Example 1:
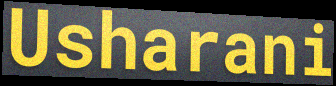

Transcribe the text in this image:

Usharani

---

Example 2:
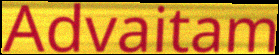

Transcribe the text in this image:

Advaitam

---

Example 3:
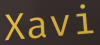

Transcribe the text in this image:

Xavi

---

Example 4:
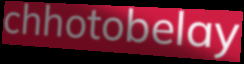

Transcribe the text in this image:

chhotobelay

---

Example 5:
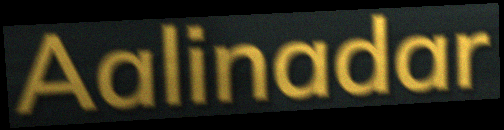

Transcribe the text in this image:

Aalinadar